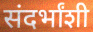
संदर्भांशी